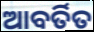
ଆବର୍ତିତ